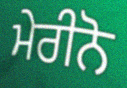
ਮੇਰੀਨੋ